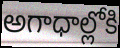
అగాధాల్లోకి